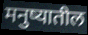
मनुष्यातील